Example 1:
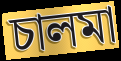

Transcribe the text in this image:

চালমা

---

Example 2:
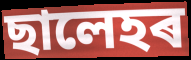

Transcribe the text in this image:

ছালেহৰ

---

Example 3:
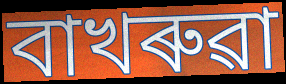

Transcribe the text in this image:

বাখৰুৱা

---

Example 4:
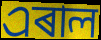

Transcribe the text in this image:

এৰাল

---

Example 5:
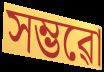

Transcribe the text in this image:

সম্ভৱো